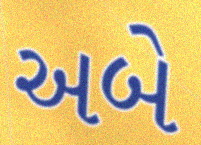
અબે